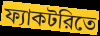
ফ্যাকটরিতে